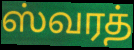
ஸ்வரத்